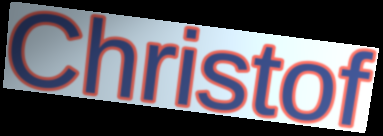
Christof